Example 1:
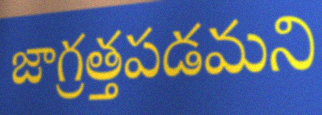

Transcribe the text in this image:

జాగ్రత్తపడమని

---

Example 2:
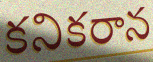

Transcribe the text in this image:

కనికరాన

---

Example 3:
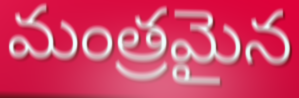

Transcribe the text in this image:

మంత్రమైన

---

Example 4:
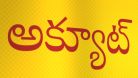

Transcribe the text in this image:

అక్యూట్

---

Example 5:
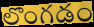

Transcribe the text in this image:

లొంగడం